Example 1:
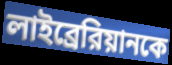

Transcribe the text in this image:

লাইব্রেরিয়ানকে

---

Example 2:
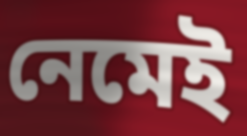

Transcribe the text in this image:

নেমেই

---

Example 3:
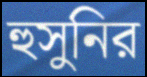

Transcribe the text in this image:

হুসুনির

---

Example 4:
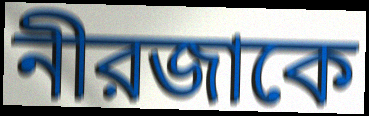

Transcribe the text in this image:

নীরজাকে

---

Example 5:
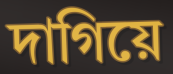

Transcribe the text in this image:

দাগিয়ে